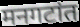
मनगटांत